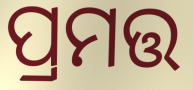
ପ୍ରମତ୍ତ